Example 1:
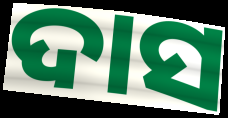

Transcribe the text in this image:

ଦାସ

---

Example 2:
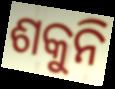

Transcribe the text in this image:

ଶକୁନି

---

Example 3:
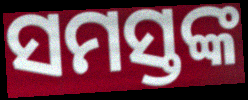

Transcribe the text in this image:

ସମସ୍ତଙ୍କ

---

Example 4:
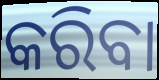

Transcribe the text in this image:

କରିବା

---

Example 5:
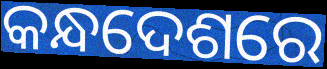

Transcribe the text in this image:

କନ୍ଧଦେଶରେ